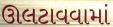
ઊલટાવવામાં